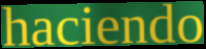
haciendo